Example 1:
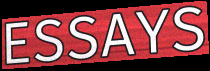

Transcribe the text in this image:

ESSAYS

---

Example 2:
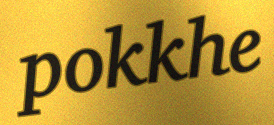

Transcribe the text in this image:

pokkhe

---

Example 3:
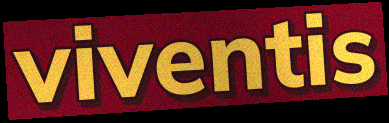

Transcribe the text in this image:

viventis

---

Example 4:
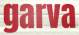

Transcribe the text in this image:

garva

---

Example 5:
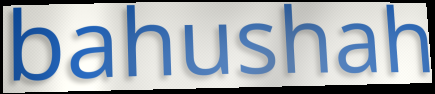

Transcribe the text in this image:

bahushah